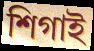
শিগাই